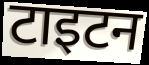
टाइटन